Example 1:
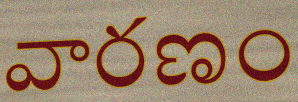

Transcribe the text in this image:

వారణం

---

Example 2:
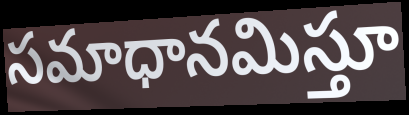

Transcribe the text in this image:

సమాధానమిస్తూ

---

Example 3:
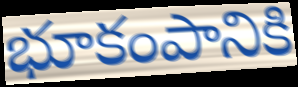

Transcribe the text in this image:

భూకంపానికి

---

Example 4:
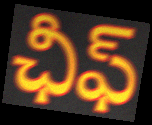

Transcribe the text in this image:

ఛీఫ్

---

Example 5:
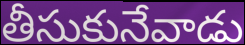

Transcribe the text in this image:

తీసుకునేవాడు